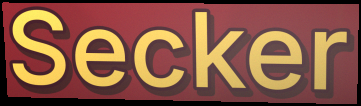
Secker